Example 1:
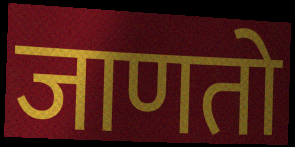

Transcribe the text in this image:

जाणतो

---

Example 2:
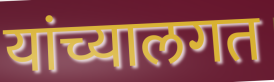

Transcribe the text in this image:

यांच्यालगत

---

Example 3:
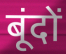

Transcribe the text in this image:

बूंदों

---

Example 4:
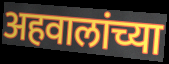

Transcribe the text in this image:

अहवालांच्या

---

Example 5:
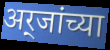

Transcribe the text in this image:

अर्जांच्या